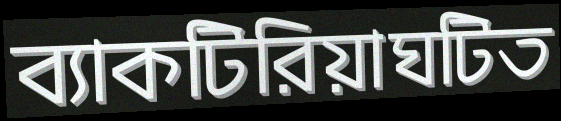
ব্যাকটিরিয়াঘটিত